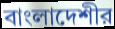
বাংলাদেশীর